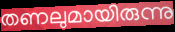
തണലുമായിരുന്നു